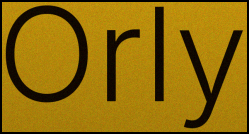
Orly